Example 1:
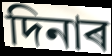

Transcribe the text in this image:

দিনাৰ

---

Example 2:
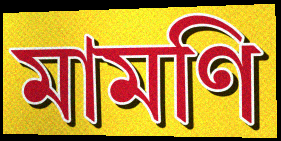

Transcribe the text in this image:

মামণি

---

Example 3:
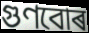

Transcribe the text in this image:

গুণবোৰ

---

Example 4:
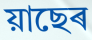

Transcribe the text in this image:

য়াছেৰ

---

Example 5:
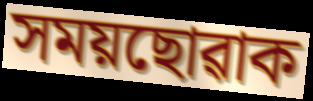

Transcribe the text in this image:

সময়ছোৱাক